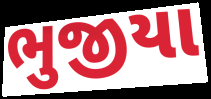
ભુજીયા